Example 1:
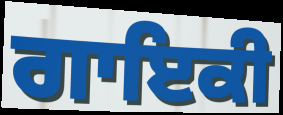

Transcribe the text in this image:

ਗਾਇਕੀ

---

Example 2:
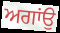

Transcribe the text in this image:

ਅਗਾਂਉ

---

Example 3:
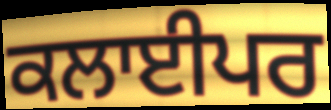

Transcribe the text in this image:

ਕਲਾਈਪਰ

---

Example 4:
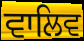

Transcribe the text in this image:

ਵਾਲਿਵ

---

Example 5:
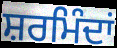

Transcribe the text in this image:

ਸ਼ਰਮਿੰਦਾਂ